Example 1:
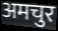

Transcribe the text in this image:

अमचुर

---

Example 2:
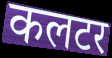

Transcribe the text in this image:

कलटर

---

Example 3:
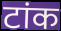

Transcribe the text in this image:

टांक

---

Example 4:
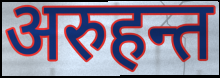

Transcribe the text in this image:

अरुहन्त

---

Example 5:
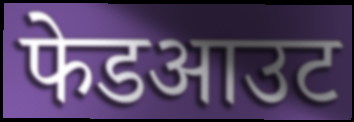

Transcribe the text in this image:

फेडआउट